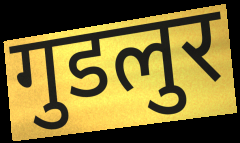
गुडलुर